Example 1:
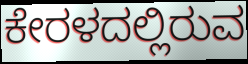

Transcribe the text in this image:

ಕೇರಳದಲ್ಲಿರುವ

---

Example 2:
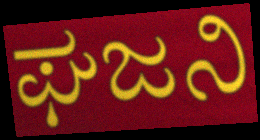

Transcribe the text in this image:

ಘಜನಿ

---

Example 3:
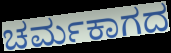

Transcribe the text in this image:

ಚರ್ಮಕಾಗದ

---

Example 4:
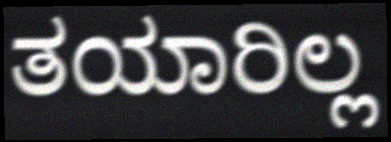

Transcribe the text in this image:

ತಯಾರಿಲ್ಲ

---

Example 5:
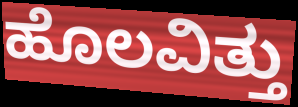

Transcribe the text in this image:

ಹೊಲವಿತ್ತು